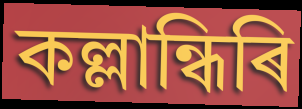
কল্লান্ধিৰি